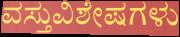
ವಸ್ತುವಿಶೇಷಗಳು